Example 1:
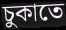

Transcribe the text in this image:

চুকাতে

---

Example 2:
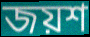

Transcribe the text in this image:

জয়শ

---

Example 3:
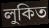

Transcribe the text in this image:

লুকিত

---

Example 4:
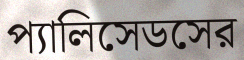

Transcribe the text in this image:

প্যালিসেডসের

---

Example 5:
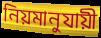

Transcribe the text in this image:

নিয়মানুযায়ী